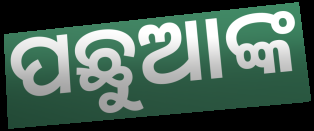
ପଛୁଆଙ୍କ